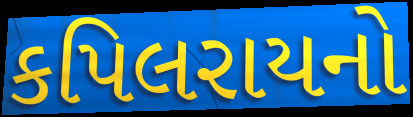
કપિલરાયનો